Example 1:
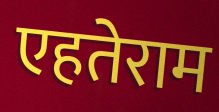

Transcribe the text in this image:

एहतेराम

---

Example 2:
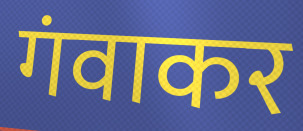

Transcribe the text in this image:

गंवाकर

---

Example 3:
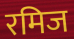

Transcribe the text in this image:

रमिज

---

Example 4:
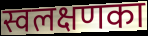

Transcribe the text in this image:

स्वलक्षणका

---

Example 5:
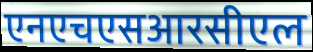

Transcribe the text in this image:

एनएचएसआरसीएल